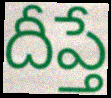
దీప్తే